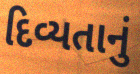
દિવ્યતાનું